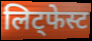
लिट्फेस्ट